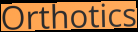
Orthotics